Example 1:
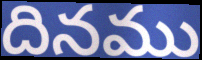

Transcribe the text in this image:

దినము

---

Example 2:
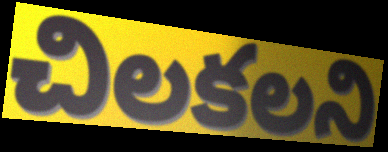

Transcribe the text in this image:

చిలకలని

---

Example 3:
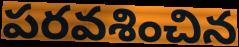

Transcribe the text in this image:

పరవశించిన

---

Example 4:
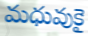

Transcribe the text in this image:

మధువుకై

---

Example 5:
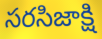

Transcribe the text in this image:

సరసిజాక్షి